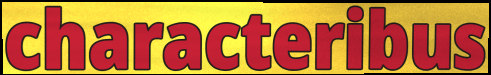
characteribus